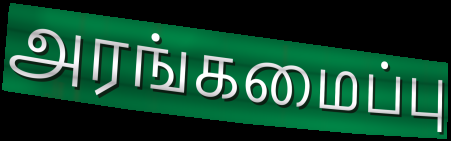
அரங்கமைப்பு